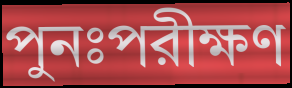
পুনঃপরীক্ষণ